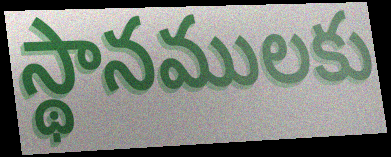
స్థానములకు